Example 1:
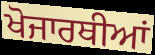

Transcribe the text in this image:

ਖੋਜਾਰਥੀਆਂ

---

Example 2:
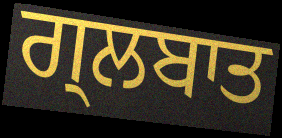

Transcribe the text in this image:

ਗ੍ਲਬਾਤ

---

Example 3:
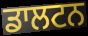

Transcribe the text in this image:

ਡਾਲਟਨ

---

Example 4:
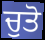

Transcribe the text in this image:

ਚੁਤੋ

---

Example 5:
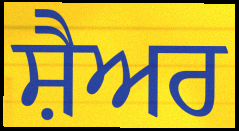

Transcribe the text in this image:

ਸ਼ੈਅਰ